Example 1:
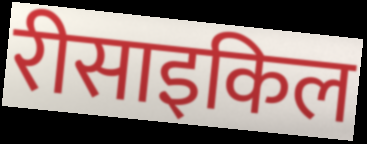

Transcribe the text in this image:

रीसाइकिल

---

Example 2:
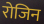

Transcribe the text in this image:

रोजिन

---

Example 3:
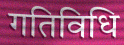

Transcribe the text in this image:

गतिविधि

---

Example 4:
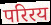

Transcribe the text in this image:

परिरय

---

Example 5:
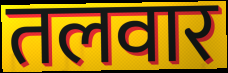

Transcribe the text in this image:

तलवार